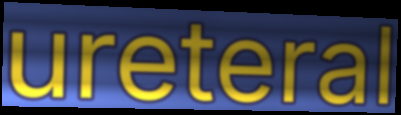
ureteral